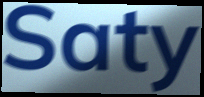
Saty